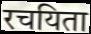
रचयिता